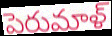
పెరుమాళ్